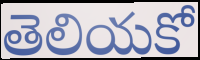
తెలియకో